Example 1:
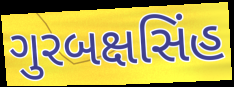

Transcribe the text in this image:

ગુરબક્ષસિંહ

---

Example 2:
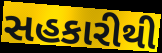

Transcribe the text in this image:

સહકારીથી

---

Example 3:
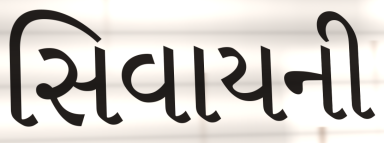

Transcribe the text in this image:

સિવાયની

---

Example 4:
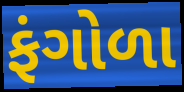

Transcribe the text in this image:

ફંગોળા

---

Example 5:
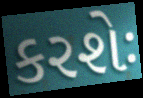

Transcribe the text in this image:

કરશેઃ